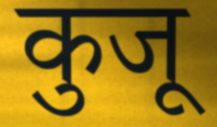
कुजू